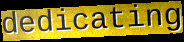
dedicating